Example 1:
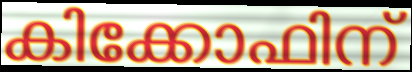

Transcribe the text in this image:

കിക്കോഫിന്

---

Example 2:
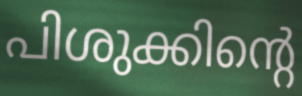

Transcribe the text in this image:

പിശുക്കിന്റെ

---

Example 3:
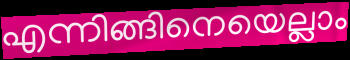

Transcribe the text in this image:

എന്നിങ്ങിനെയെല്ലാം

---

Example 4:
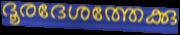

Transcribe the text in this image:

ദൂരദേശത്തേക്കു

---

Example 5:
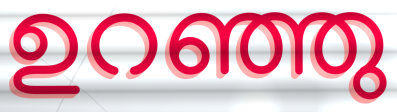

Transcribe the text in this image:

ഉറഞ്ഞു